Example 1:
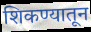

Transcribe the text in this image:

शिकण्यातून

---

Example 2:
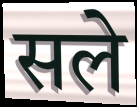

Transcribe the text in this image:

सले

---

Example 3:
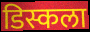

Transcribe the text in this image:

डिस्कला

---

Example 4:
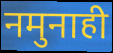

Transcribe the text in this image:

नमुनाही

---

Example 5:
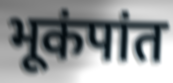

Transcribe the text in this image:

भूकंपांत